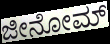
ಜೀನೋಮ್